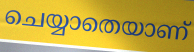
ചെയ്യാതെയാണ്